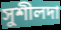
সুশীলদা